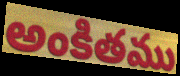
అంకితము